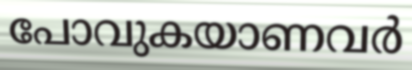
പോവുകയാണവർ